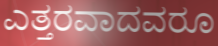
ಎತ್ತರವಾದವರೂ